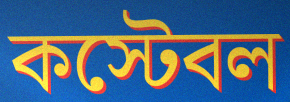
কস্টেবল